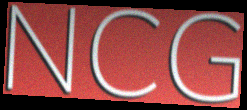
NCG